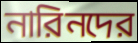
নারিনদের